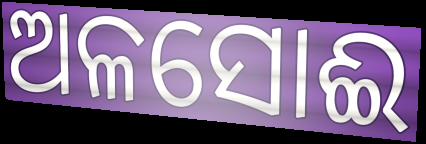
ଅଳସୋଈ